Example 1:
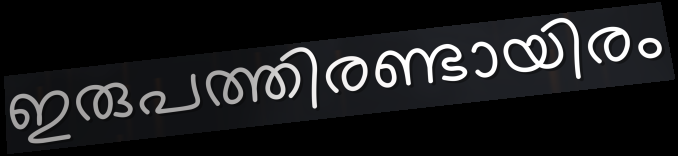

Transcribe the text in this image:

ഇരുപത്തിരണ്ടായിരം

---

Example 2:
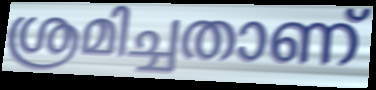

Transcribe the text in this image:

ശ്രമിച്ചതാണ്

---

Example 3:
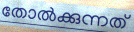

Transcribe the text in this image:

തോൽക്കുന്നത്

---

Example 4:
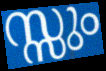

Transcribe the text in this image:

സ്സും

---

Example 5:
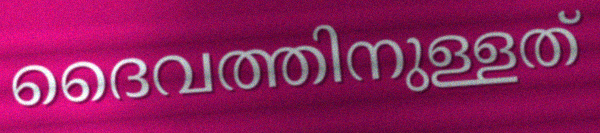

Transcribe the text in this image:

ദൈവത്തിനുള്ളത്